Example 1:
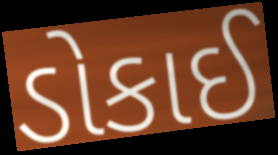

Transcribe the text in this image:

ડોકાઈ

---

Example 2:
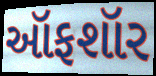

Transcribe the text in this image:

ઑફશૉર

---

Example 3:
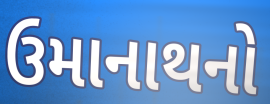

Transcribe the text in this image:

ઉમાનાથનો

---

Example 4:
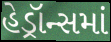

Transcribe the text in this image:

હેડ્રૉન્સમાં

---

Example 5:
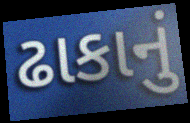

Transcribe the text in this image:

ઢાકાનું